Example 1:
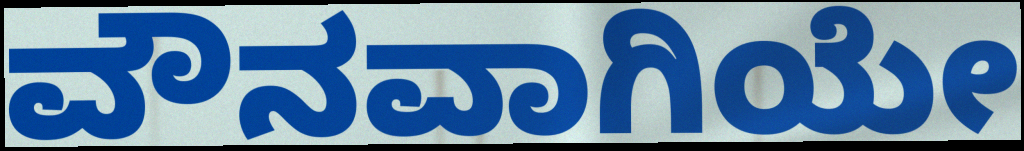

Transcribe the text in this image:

ವೌನವಾಗಿಯೇ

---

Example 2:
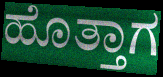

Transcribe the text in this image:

ಹೊತ್ತಾಗ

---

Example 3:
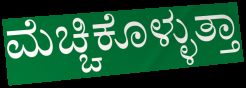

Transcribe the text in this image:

ಮೆಚ್ಚಿಕೊಳ್ಳುತ್ತಾ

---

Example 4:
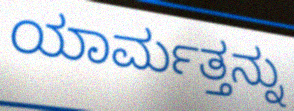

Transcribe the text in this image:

ಯಾರ್ಮತ್ತನ್ನು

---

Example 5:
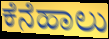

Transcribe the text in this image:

ಕೆನೆಹಾಲು